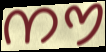
നൗ